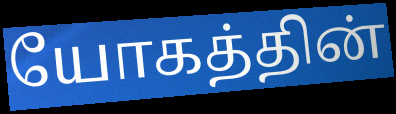
யோகத்தின்